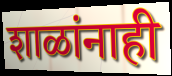
शाळांनाही